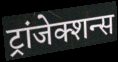
ट्रांजेक्शन्स